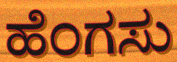
ಹೆಂಗಸು